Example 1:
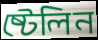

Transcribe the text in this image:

ষ্টেলিন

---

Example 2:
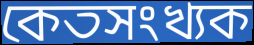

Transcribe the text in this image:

কেতসংখ্যক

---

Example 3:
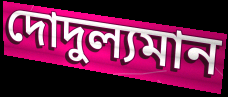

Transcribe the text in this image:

দোদুল্যমান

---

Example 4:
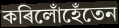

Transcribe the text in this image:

কৰিলোঁহেঁতেন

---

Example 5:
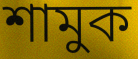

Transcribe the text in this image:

শামুক